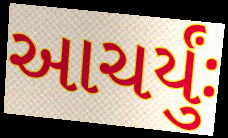
આચર્યુંઃ